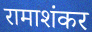
रामाशंकर